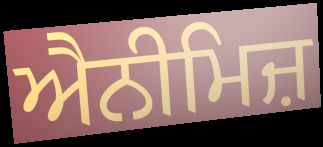
ਐਨੀਮਿਜ਼